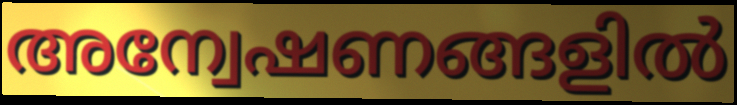
അന്വേഷണങ്ങളിൽ